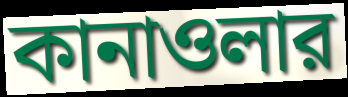
কানাওলার